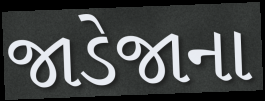
જાડેજાના